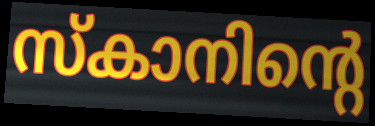
സ്കാനിന്റെ